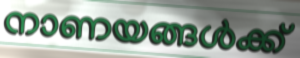
നാണയങ്ങൾക്ക്